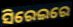
ସିରେଇରେ